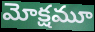
మోక్షమూ